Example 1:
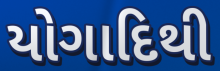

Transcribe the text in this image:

યોગાદિથી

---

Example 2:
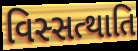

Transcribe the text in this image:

વિસ્સત્થાતિ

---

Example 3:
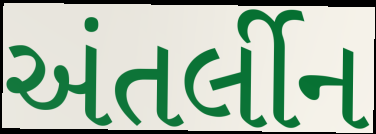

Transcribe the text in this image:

અંતર્લીન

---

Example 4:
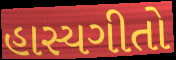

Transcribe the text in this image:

હાસ્યગીતો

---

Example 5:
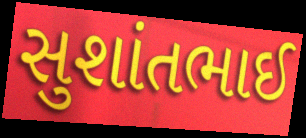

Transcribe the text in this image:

સુશાંતભાઈ